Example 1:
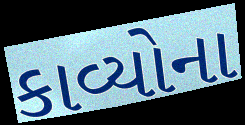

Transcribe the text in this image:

કાવ્યોના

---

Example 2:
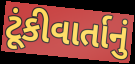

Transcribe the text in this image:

ટૂંકીવાર્તાનું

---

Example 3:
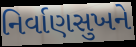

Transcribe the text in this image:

નિર્વાણસુખને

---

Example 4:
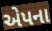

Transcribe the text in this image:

એપના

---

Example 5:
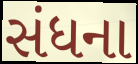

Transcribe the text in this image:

સંધના